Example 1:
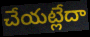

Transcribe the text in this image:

చేయట్లేదా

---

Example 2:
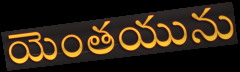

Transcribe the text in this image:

యెంతయును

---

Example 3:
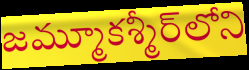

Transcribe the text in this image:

జమ్మూకశ్మీర్‌లోని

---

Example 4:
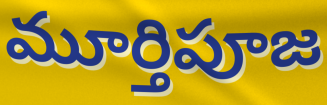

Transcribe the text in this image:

మూర్తిపూజ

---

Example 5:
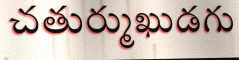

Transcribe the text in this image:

చతుర్ముఖుడగు